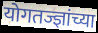
योगतज्ज्ञांच्या